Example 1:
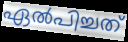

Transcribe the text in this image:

ഏൽപിച്ചത്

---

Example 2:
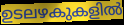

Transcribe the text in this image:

ഉടലഴകുകളിൽ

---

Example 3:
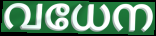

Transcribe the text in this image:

വധേന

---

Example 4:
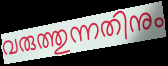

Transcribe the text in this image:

വരുത്തുന്നതിനും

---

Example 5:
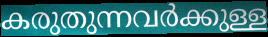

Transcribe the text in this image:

കരുതുന്നവർക്കുള്ള